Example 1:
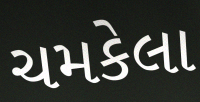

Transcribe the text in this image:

ચમકેલા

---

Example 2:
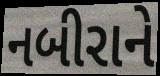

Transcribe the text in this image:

નબીરાને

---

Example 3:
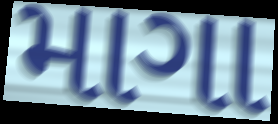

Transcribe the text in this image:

માગા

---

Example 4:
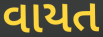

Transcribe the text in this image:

વાયત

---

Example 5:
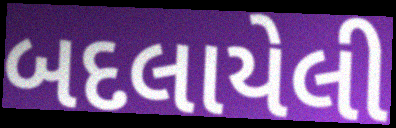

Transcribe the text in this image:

બદલાયેલી